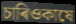
চাৰিওকাষে